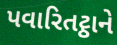
પવારિતટ્ઠાને